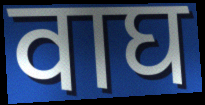
वाघ